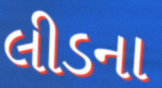
લીડના